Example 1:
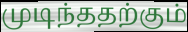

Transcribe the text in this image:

முடிந்ததற்கும்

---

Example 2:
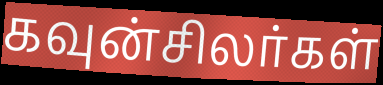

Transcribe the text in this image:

கவுன்சிலர்கள்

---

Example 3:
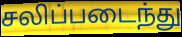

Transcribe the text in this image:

சலிப்படைந்து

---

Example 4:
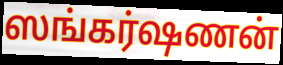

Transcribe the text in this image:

ஸங்கர்ஷணன்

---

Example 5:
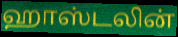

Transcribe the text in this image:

ஹாஸ்டலின்